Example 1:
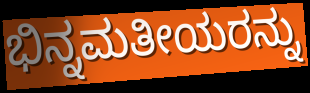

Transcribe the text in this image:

ಭಿನ್ನಮತೀಯರನ್ನು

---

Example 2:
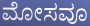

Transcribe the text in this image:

ಮೋಸವೂ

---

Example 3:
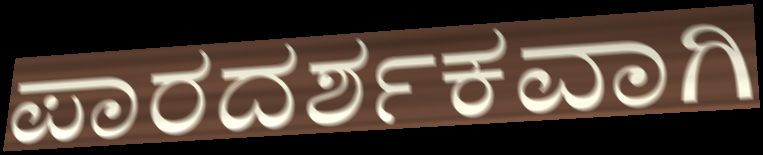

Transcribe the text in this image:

ಪಾರದರ್ಶಕವಾಗಿ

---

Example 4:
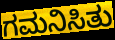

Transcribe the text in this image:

ಗಮನಿಸಿತು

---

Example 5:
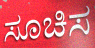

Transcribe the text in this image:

ಸೂಚಿಸ